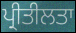
ਪ੍ਰੀਤੀਲਤਾ